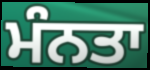
ਮੰਨਤਾ